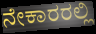
ನೇಕಾರರಲ್ಲಿ